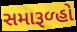
સમારૂળ્હો